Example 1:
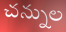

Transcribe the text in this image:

చన్నుల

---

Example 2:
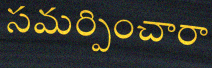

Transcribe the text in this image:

సమర్పించారా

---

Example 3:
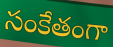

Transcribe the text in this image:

సంకేతంగా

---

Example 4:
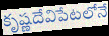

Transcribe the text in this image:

కృష్ణదేవిపేటలోనే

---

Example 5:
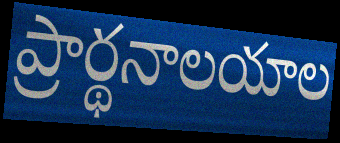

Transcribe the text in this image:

ప్రార్థనాలయాల